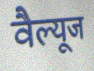
वैल्यूज